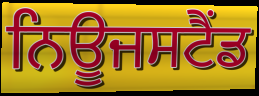
ਨਿਊਜਸਟੈਂਡ